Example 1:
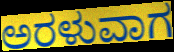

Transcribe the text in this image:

ಅರಳುವಾಗ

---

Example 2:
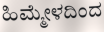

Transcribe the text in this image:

ಹಿಮ್ಮೇಳದಿಂದ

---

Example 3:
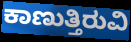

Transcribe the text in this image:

ಕಾಣುತ್ತಿರುವಿ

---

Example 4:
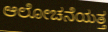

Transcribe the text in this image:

ಆಲೋಚನೆಯತ್ತ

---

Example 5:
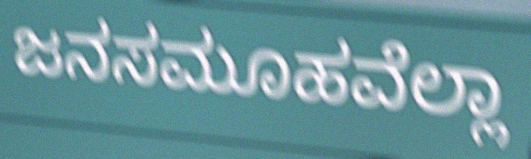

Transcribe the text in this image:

ಜನಸಮೂಹವೆಲ್ಲಾ